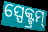
ସ୍ପେକ୍ଟ୍ରମ୍